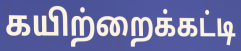
கயிற்றைக்கட்டி